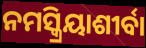
ନମସ୍କ୍ରିୟାଶୀର୍ବା